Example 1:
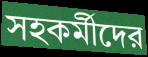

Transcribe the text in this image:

সহকর্মীদের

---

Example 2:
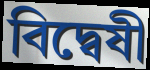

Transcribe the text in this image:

বিদ্বেষী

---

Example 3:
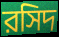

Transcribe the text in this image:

রসিদ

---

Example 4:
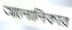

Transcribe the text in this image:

আলোলিকার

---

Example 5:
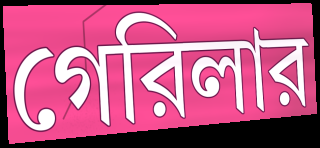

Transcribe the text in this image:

গেরিলার